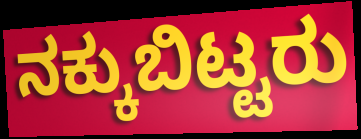
ನಕ್ಕುಬಿಟ್ಟರು